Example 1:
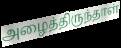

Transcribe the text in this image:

அழைத்திருந்தாள்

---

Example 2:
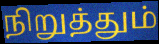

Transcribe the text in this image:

நிறுத்தும்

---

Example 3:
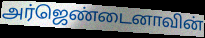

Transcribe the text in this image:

அர்ஜெண்டைனாவின்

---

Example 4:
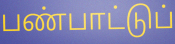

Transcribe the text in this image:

பண்பாட்டுப்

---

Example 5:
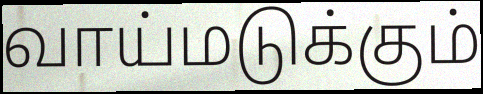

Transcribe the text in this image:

வாய்மடுக்கும்